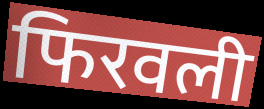
फिरवली